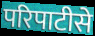
परिपाटीसे